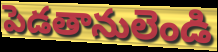
పెడతానులెండి